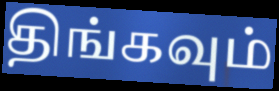
திங்கவும்